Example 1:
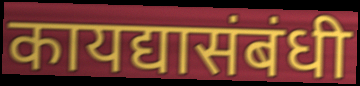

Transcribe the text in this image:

कायद्यासंबंधी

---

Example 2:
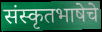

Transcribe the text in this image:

संस्कृतभाषेचे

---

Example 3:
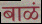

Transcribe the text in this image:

बाळं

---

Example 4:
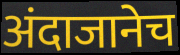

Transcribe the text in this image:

अंदाजानेच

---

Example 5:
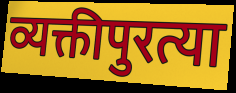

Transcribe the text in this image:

व्यक्तीपुरत्या